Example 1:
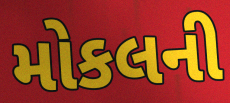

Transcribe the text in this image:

મોકલની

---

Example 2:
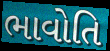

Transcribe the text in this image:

ભાવોતિ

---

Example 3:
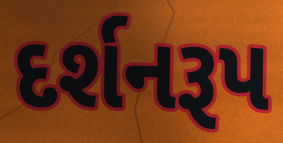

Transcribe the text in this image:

દર્શનરૂપ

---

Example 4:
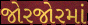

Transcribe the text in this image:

જોરજોરમાં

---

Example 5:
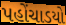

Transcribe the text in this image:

પહોંચાડયો